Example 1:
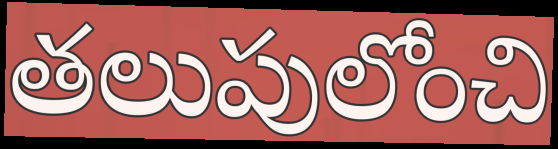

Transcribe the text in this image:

తలుపులోంచి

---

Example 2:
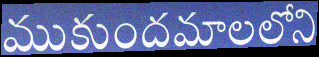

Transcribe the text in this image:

ముకుందమాలలోని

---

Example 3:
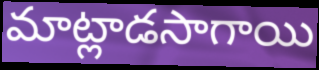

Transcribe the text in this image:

మాట్లాడసాగాయి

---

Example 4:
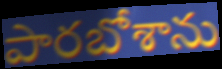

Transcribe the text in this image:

పారబోశాను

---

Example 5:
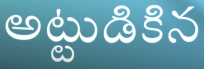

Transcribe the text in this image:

అట్టుడికిన